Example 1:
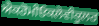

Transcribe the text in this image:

ਐਕਰੋਮੀਓਕਲੇਵੀਕੂਲਰ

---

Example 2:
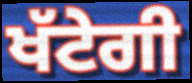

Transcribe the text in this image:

ਖੱਟੇਗੀ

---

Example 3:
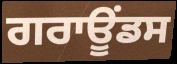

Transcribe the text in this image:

ਗਰਾਊਂਡਸ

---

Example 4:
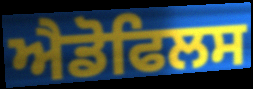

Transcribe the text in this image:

ਐਡੋਫਿਲਸ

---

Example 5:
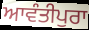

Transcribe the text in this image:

ਆਵੰਤੀਪੁਰਾ